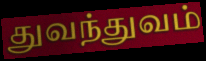
துவந்துவம்